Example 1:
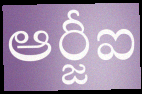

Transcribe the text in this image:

ఆర్జీఐ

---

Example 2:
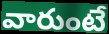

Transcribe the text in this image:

వారుంటే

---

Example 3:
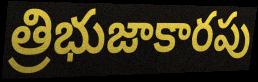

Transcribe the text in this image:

త్రిభుజాకారపు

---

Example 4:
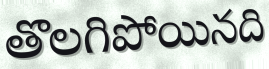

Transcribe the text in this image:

తొలగిపోయినది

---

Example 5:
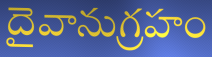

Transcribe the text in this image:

దైవానుగ్రహం